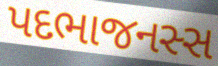
પદભાજનસ્સ